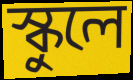
স্কুলে